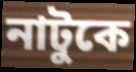
নাটুকে